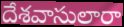
దేశవాసులారా